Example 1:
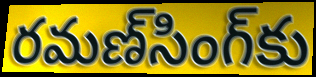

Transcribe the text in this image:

రమణ్‌సింగ్‌కు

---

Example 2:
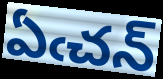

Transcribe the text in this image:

ఏఁచన్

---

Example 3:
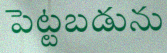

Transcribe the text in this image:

పెట్టబడును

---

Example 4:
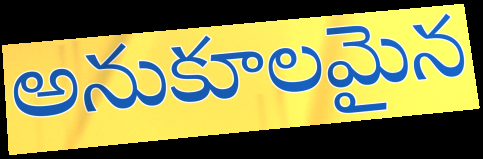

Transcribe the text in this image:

అనుకూలమైన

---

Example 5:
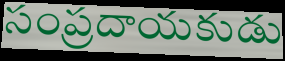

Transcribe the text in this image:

సంప్రదాయకుడు